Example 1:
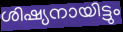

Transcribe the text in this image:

ശിഷ്യനായിട്ടും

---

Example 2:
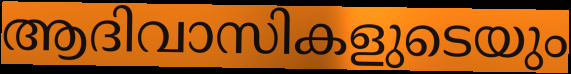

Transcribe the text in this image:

ആദിവാസികളുടെയും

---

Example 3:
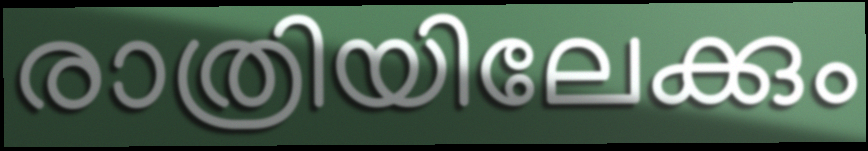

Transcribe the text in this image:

രാത്രിയിലേക്കും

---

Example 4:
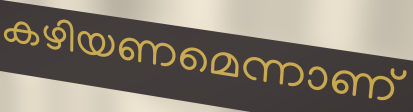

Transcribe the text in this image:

കഴിയണമെന്നാണ്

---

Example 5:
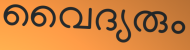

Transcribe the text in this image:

വൈദ്യരും